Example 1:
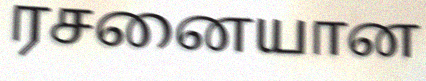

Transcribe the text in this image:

ரசனையான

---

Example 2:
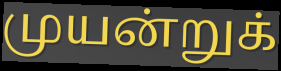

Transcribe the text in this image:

முயன்றுக்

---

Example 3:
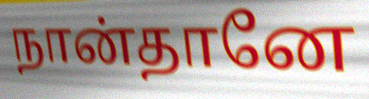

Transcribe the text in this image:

நான்தானே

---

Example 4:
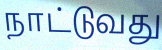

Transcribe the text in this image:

நாட்டுவது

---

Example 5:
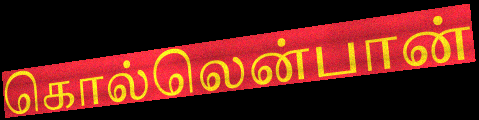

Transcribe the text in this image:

கொல்லென்பான்